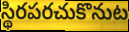
స్థిరపరచుకొనుట